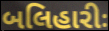
બલિહારીઃ